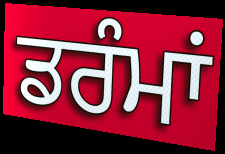
ਡਰੰਮਾਂ